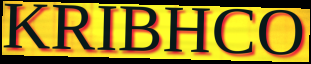
KRIBHCO